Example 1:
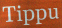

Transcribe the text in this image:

Tippu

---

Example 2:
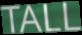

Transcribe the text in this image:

TALL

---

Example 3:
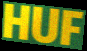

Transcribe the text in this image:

HUF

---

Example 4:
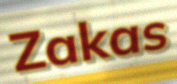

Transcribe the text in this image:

Zakas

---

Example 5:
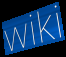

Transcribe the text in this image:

wiki